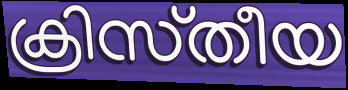
ക്രിസ്‌തീയ